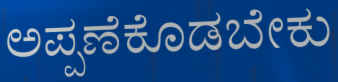
ಅಪ್ಪಣೆಕೊಡಬೇಕು